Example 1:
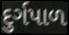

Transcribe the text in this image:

દુર્ગપાળ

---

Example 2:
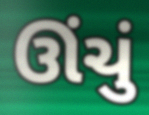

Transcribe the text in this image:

ઊંચું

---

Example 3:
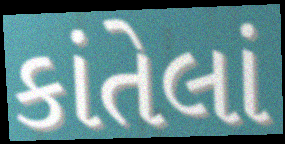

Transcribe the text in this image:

કાંતેલાં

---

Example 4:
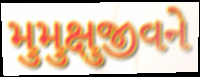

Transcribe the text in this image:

મુમુક્ષુજીવને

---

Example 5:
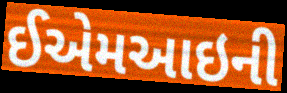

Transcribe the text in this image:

ઈએમઆઇની